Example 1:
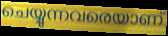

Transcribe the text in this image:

ചെയ്യുന്നവരെയാണ്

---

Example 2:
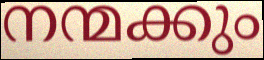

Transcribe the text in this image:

നന്മക്കും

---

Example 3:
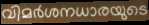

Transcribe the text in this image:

വിമർശനധാരയുടെ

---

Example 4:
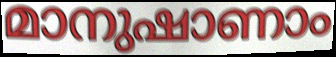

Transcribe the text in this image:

മാനുഷാണാം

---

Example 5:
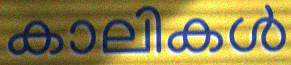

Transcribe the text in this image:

കാലികൾ